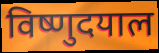
विष्णुदयाल